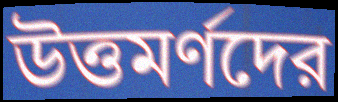
উত্তমর্ণদের